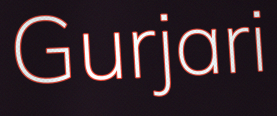
Gurjari